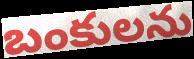
బంకులను